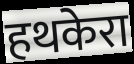
हथकेरा